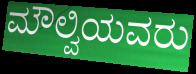
ಮೌಲ್ವಿಯವರು